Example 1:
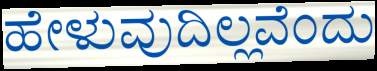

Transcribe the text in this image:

ಹೇಳುವುದಿಲ್ಲವೆಂದು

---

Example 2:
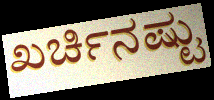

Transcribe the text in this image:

ಖರ್ಚಿನಷ್ಟು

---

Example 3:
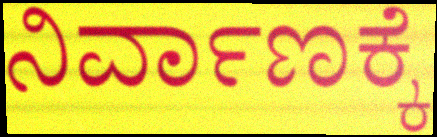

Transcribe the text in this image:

ನಿರ್ವಾಣಕ್ಕೆ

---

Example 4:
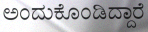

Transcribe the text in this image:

ಅಂದುಕೊಂಡಿದ್ದಾರೆ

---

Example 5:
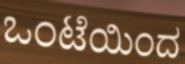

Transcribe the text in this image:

ಒಂಟೆಯಿಂದ